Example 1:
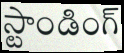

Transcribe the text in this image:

స్టాండింగ్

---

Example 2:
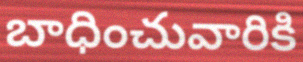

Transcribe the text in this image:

బాధించువారికి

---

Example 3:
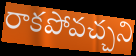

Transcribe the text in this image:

రాకపోవచ్చని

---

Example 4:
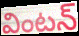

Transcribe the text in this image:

వింటన్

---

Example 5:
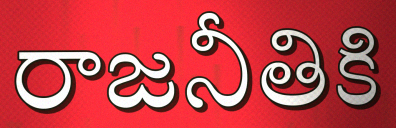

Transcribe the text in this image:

రాజనీతికి